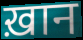
ख़ान